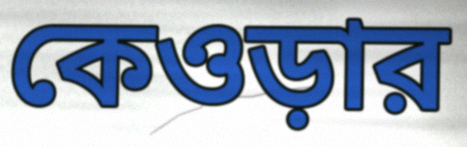
কেওড়ার